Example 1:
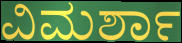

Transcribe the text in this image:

ವಿಮರ್ಶಾ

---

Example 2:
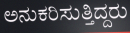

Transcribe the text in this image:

ಅನುಕರಿಸುತ್ತಿದ್ದರು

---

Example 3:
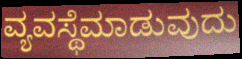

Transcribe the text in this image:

ವ್ಯವಸ್ಥೆಮಾಡುವುದು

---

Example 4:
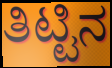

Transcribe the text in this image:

ತಿಟ್ಟಿನ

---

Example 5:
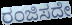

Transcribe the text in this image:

ರಂಜಿಸದೇ